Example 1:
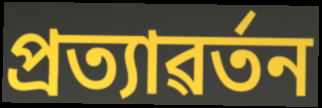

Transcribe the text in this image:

প্ৰত্যাৱৰ্তন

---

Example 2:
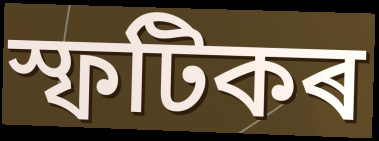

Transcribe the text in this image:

স্ফটিকৰ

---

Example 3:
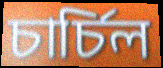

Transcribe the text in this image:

চাৰ্চিল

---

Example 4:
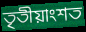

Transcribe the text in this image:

তৃতীয়াংশত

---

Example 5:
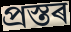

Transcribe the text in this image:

প্ৰস্তৰ